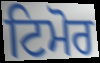
ਟਿਮੋਰ